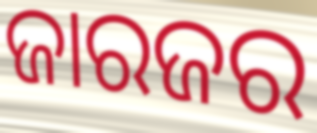
ଜାରଜର